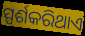
ସ୍ପର୍ଶକରିଥାଏ